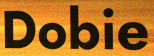
Dobie